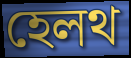
হেলথ